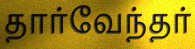
தார்வேந்தர்